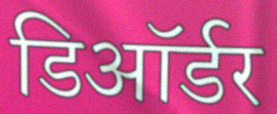
डिऑर्डर